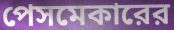
পেসমেকারের